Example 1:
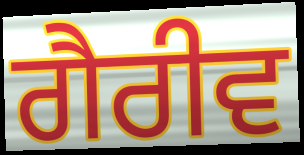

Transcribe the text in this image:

ਗੈਰੀਵ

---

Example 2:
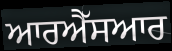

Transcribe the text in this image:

ਆਰਐੱਸਆਰ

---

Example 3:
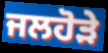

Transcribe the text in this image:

ਜਲਹੋੜੇ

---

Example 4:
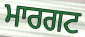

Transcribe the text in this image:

ਮਾਰਗਟ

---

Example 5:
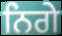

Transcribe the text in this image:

ਨਿਗੇ